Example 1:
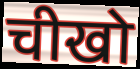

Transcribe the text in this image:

चीखो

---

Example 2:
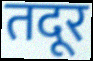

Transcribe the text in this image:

तदूर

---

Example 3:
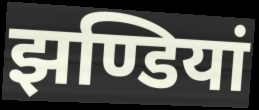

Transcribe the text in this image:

झण्डियां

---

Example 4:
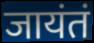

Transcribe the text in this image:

जायंतं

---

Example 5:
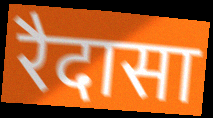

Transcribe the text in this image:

रैदासा